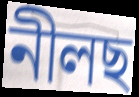
নীলছ